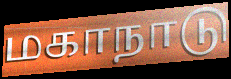
மகாநாடு